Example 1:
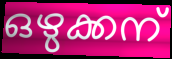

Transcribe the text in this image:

ഒഴുക്കന്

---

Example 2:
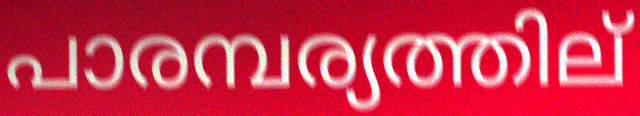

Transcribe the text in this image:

പാരമ്പര്യത്തില്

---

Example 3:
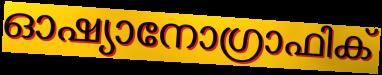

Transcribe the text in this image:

ഓഷ്യാനോഗ്രാഫിക്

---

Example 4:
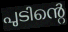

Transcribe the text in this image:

പുടിന്റെ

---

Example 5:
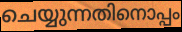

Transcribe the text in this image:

ചെയ്യുന്നതിനൊപ്പം